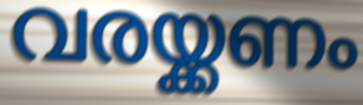
വരയ്ക്കണം